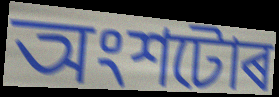
অংশটোৰ